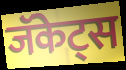
जॅकेट्स